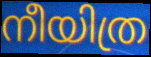
നീയിത്ര